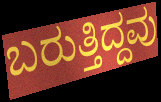
ಬರುತ್ತಿದ್ದವು